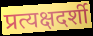
प्रत्यक्षदर्शी